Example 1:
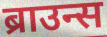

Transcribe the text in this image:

ब्राउन्स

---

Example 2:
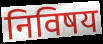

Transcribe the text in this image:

निविषय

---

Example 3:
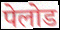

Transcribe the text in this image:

पेलोड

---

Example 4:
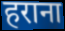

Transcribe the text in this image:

हराना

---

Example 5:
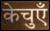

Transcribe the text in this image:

केचुएँ